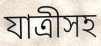
যাত্রীসহ